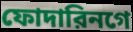
ফোদারিনগে